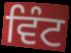
ਵਿੰਟ